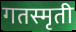
गतस्मृती